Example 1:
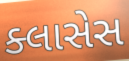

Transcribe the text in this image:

ક્લાસેસ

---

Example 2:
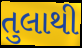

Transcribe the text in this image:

તુલાથી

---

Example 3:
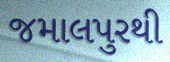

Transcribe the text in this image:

જમાલપુરથી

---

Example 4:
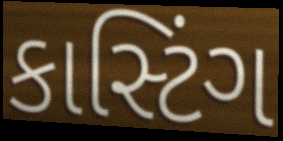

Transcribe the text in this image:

કાસ્ટિંગ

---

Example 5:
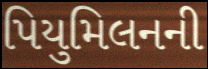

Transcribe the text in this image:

પિયુમિલનની